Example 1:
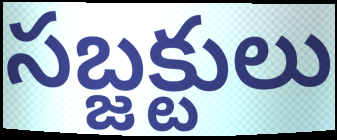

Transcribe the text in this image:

సబ్జక్టులు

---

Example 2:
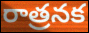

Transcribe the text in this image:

రాత్రనక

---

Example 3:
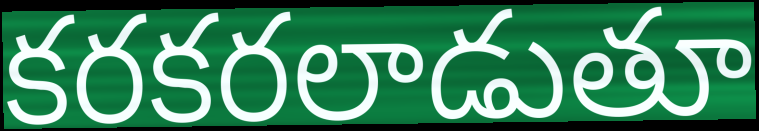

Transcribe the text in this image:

కరకరలాడుతూ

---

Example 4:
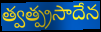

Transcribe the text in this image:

త్వత్ప్రసాదేన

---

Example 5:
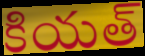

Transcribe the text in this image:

కియత్